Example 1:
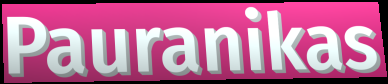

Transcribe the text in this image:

Pauranikas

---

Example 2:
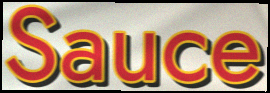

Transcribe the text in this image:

Sauce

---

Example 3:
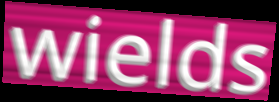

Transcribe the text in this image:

wields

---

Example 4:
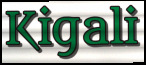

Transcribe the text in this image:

Kigali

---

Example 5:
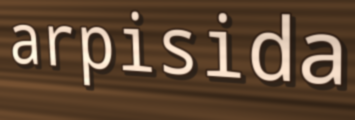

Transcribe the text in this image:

arpisida